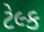
ટેલ્ક